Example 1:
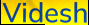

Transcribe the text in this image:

Videsh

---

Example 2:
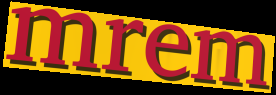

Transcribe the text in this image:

mrem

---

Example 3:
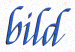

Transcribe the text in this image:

bild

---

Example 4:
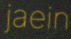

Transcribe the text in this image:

jaein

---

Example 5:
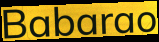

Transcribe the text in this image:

Babarao